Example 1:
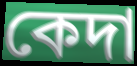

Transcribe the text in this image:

কেদা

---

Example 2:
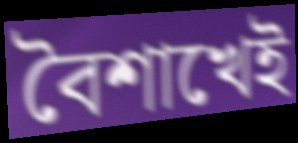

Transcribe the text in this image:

বৈশাখেই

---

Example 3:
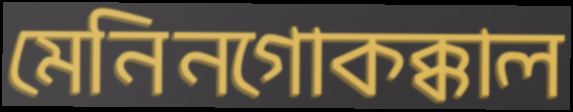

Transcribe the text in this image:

মেনিনগোকক্কাল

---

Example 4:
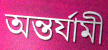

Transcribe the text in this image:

অন্তর্যামী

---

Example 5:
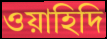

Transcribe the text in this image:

ওয়াহিদি